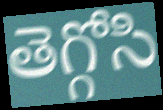
తెగ్గోసి